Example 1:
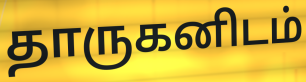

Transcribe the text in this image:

தாருகனிடம்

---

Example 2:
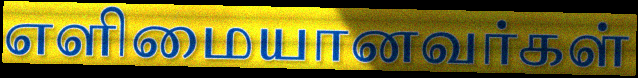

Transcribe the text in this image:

எளிமையானவர்கள்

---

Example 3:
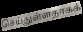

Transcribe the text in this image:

செய்துள்ளதாகக்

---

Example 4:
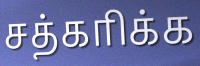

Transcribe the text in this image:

சத்கரிக்க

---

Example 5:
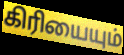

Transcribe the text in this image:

கிரியையும்